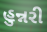
હુન્નરી